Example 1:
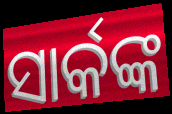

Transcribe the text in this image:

ସାର୍କଙ୍କ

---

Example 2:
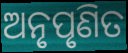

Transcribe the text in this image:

ଅନୃପୃଣିତ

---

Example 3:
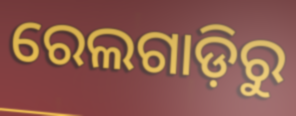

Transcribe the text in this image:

ରେଲଗାଡ଼ିରୁ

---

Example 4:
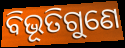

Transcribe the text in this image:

ବିଭୂତିଗୁଣେ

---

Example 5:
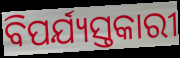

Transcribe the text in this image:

ବିପର୍ଯ୍ୟସ୍ତକାରୀ